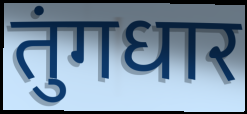
तुंगधार